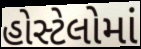
હોસ્ટેલોમાં